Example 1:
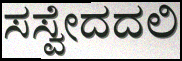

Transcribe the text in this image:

ಸಸ್ವೇದದಲಿ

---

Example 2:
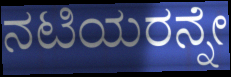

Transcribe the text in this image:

ನಟಿಯರನ್ನೇ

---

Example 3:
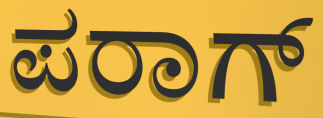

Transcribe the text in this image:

ಪರಾಗ್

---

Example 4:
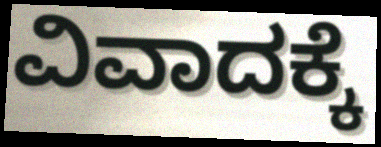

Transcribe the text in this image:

ವಿವಾದಕ್ಕೆ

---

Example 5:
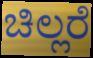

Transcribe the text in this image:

ಚಿಲ್ಲರೆ